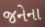
જનેના